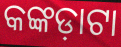
କଙ୍କଡ଼ାଟା